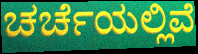
ಚರ್ಚೆಯಲ್ಲಿವೆ